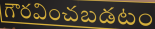
గౌరవించబడటం